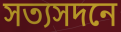
সত্যসদনে